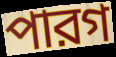
পারগ